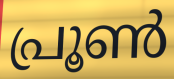
പ്രൂൺ